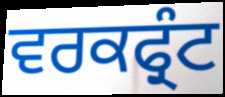
ਵਰਕਫ੍ਰੰਟ